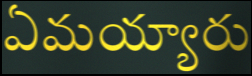
ఏమయ్యారు